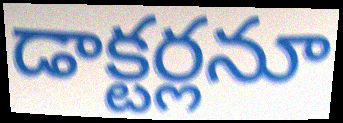
డాక్టర్లనూ